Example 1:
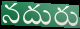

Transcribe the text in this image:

నదురు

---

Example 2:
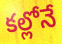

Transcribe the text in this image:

కల్లోనే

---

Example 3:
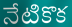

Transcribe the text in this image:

నేటికొక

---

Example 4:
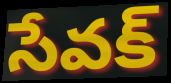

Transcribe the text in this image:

సేవక్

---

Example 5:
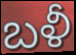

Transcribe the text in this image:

బళీ